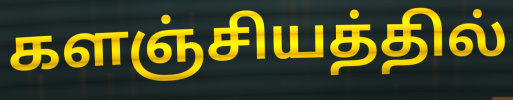
களஞ்சியத்தில்